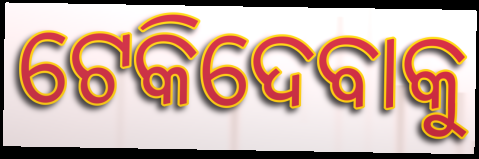
ଟେକିଦେବାକୁ